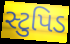
સ્ટુપિડ